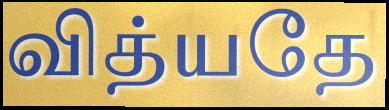
வித்யதே